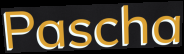
Pascha